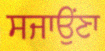
ਸਜਾਉਂਣਾ